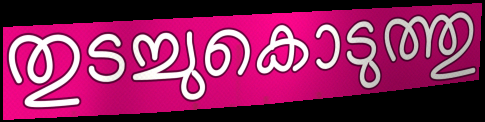
തുടച്ചുകൊടുത്തു